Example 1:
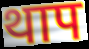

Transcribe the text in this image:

थाप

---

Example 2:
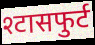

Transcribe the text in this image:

श्टासफुर्ट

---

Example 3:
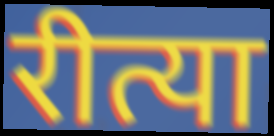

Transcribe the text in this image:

रीत्या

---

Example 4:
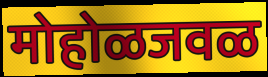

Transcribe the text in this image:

मोहोळजवळ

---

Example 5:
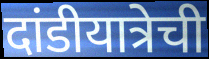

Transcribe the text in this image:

दांडीयात्रेची